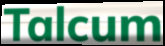
Talcum